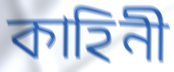
কাহিনী